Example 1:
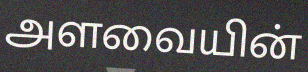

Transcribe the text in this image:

அளவையின்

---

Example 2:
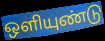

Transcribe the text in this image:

ஒளியுண்டு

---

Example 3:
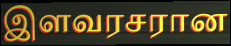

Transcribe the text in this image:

இளவரசரான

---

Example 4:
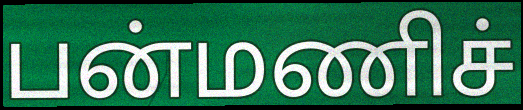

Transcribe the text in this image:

பன்மணிச்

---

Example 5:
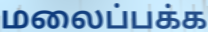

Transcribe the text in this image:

மலைப்பக்க